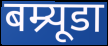
बम्र्यूडा